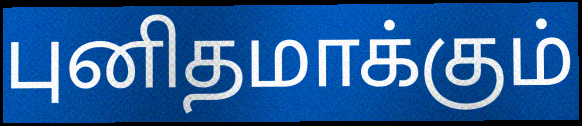
புனிதமாக்கும்